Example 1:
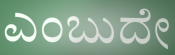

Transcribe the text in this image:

ಎಂಬುದೇ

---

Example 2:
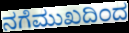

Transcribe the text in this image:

ನಗೆಮುಖದಿಂದ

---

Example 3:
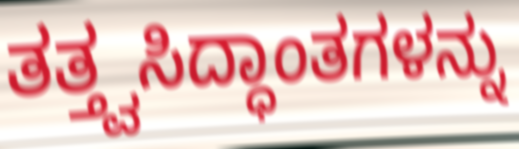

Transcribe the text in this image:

ತತ್ತ್ವಸಿದ್ಧಾಂತಗಳನ್ನು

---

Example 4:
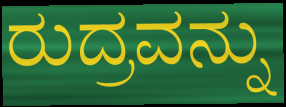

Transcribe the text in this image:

ರುದ್ರವನ್ನು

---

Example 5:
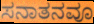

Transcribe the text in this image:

ಸನಾತನವೂ